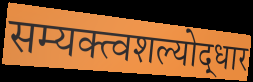
सम्यक्त्वशल्योद्धार